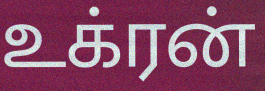
உக்ரன்